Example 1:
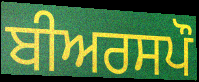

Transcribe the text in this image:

ਬੀਅਰਸਪੌ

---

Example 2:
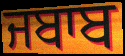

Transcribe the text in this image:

ਜਬਾਬ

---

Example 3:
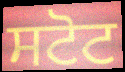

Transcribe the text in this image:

ਸਟੋਟ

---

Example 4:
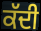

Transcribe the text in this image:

ਕੱਦੀ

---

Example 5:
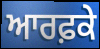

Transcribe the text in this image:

ਆਰਫ਼ਕੇ